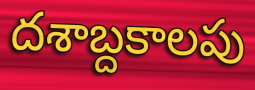
దశాబ్దకాలపు